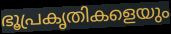
ഭൂപ്രകൃതികളെയും